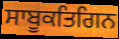
ਸਾਬੂਕਤਿਗਿਨ